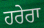
ਹਰੇਰਾ